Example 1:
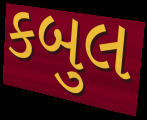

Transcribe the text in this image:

કબુલ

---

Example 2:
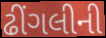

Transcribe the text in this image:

ઢીંગલીની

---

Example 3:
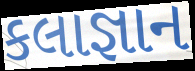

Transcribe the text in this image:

કલાજ્ઞાન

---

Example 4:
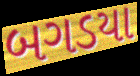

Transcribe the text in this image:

બગડયા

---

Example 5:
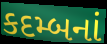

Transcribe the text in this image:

કદમ્બનાં